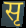
सृ